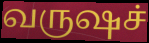
வருஷச்